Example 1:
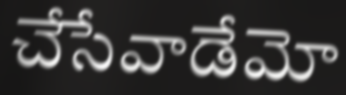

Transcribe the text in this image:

చేసేవాడేమో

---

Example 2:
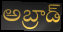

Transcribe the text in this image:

అబ్రాడ్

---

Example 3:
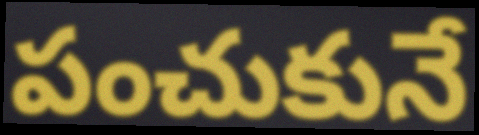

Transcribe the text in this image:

పంచుకునే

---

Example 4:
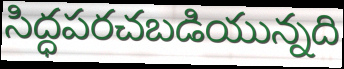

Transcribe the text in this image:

సిద్ధపరచబడియున్నది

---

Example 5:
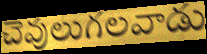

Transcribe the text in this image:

చెవులుగలవాడు